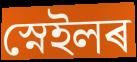
স্নেইলৰ